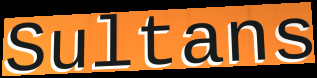
Sultans